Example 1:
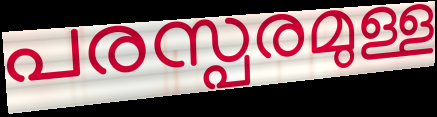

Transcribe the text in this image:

പരസ്പരമുള്ള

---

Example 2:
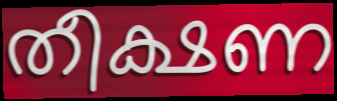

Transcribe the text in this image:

തീക്ഷണ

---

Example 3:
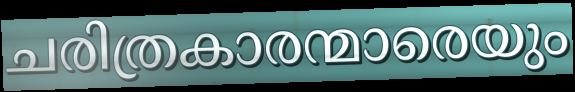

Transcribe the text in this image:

ചരിത്രകാരന്മാരെയും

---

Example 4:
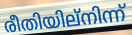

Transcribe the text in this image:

രീതിയില്നിന്ന്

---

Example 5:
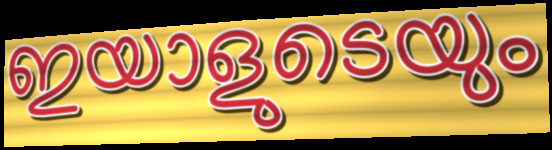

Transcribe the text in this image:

ഇയാളുടെയും